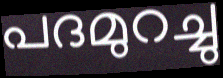
പദമുറച്ചു